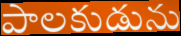
పాలకుడును